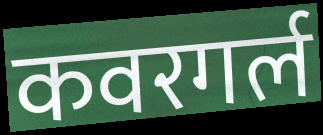
कवरगर्ल